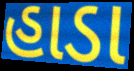
હાડા